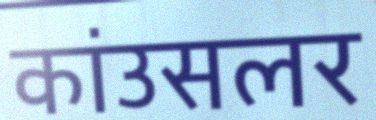
कांउसलर